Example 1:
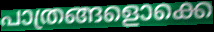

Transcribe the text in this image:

പാത്രങ്ങളൊക്കെ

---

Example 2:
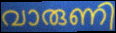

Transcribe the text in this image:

വാരുണി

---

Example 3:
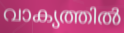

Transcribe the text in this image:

വാക്യത്തിൽ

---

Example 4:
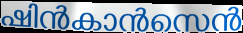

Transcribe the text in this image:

ഷിൻകാൻസെൻ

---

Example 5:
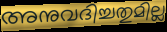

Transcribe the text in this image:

അനുവദിച്ചതുമില്ല